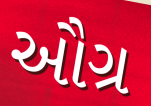
ઔગ્ર